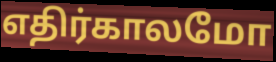
எதிர்காலமோ